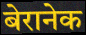
बेरानेक